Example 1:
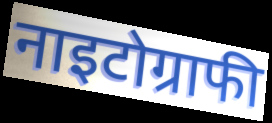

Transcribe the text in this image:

नाइटोग्राफी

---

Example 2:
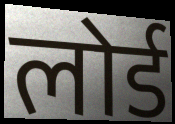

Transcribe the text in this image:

लोर्ड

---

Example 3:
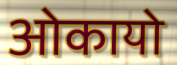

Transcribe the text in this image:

ओकायो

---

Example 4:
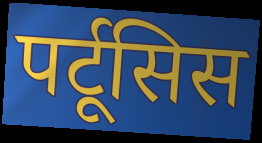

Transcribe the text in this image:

पर्टूसिस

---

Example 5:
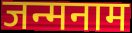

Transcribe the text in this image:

जन्मनाम